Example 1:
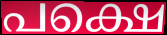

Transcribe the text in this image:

പക്ഷെ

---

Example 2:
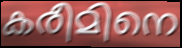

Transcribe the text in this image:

കരീമിനെ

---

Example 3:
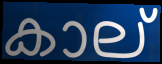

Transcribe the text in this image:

കാല്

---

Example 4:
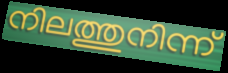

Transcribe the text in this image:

നിലത്തുനിന്ന്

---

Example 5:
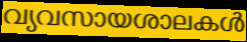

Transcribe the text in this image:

വ്യവസായശാലകൾ